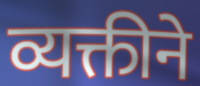
व्यक्तीने